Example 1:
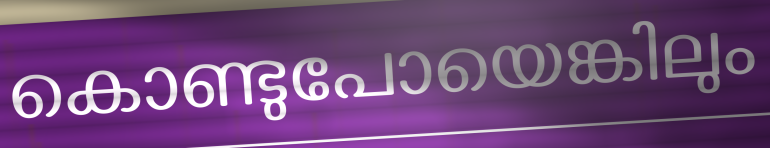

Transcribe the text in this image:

കൊണ്ടുപോയെങ്കിലും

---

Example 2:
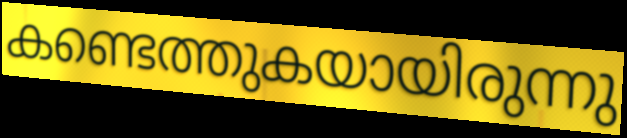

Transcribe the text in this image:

കണ്ടെത്തുകയായിരുന്നു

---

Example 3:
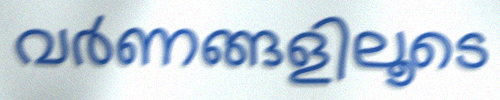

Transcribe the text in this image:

വർണങ്ങളിലൂടെ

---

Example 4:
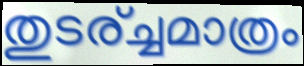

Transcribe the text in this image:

തുടര്ച്ചമാത്രം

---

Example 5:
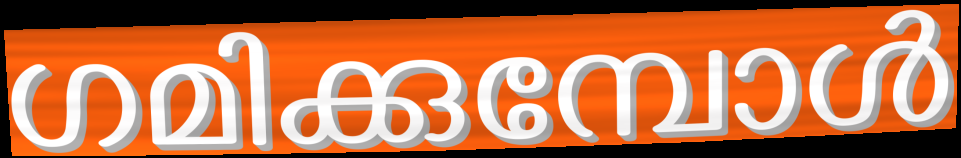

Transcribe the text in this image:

ഗമിക്കുമ്പോൾ